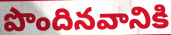
పొందినవానికి